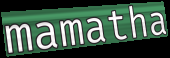
mamatha